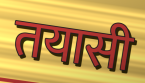
तयासी